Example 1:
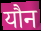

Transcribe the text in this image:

यौन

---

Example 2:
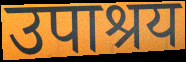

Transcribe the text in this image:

उपाश्रय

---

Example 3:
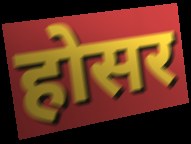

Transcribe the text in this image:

होसर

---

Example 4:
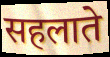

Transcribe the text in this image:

सहलाते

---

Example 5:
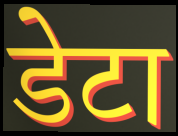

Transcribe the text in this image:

डेटा